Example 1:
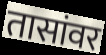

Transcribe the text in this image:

तासांवर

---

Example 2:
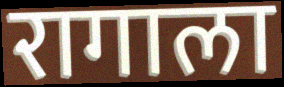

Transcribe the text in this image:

रागाला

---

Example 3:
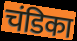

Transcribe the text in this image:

चंडिका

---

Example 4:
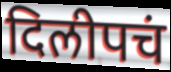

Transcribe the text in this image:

दिलीपचं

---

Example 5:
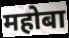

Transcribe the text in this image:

महोबा